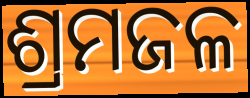
ଶ୍ରମଜଳ